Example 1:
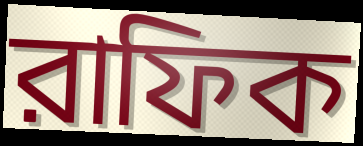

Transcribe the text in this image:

রাফিক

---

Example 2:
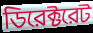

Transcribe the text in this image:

ডিরেক্টরেট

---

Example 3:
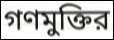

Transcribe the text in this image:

গণমুক্তির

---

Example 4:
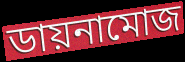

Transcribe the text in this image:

ডায়নামোজ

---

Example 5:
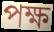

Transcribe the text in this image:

পক্ষ